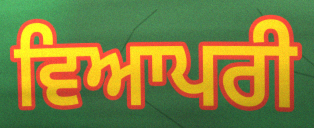
ਵਿਆਪਰੀ